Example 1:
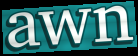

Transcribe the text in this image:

awn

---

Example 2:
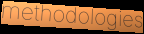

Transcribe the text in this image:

methodologies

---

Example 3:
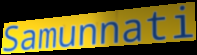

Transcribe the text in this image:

Samunnati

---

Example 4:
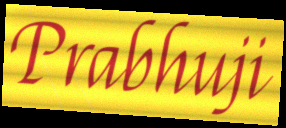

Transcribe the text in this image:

Prabhuji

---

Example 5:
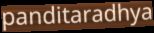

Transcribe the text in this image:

panditaradhya